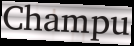
Champu